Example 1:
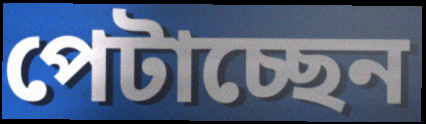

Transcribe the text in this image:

পেটাচ্ছেন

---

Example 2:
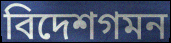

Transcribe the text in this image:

বিদেশগমন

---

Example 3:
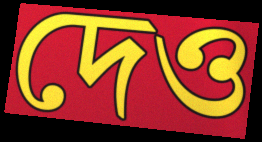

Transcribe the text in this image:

দেও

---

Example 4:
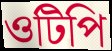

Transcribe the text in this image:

ওটিপি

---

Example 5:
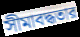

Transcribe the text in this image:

সীমাবদ্ধতার